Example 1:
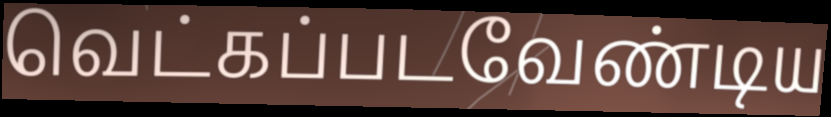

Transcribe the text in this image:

வெட்கப்படவேண்டிய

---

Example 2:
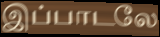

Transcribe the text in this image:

இப்பாடலே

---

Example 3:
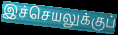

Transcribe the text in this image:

இச்செயலுக்குப்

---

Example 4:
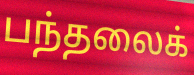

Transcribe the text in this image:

பந்தலைக்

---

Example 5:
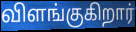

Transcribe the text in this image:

விளங்குகிறார்